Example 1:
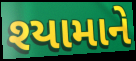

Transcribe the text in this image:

શ્યામાને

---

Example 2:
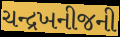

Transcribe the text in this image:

ચન્દ્રખનીજની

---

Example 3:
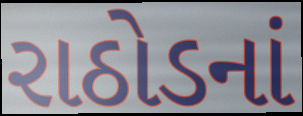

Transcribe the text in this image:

રાઠોડનાં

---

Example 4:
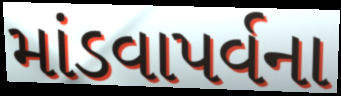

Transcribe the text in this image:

માંડવાપર્વના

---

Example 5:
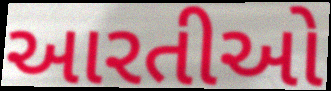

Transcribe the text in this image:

આરતીઓ